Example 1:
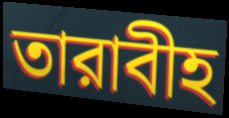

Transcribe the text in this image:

তারাবীহ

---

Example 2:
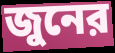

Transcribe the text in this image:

জুনের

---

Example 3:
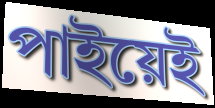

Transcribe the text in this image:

পাইয়েই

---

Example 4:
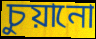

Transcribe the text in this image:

চুয়ানো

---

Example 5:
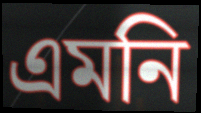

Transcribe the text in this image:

এমনি